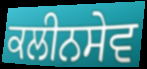
ਕਲੀਨਸੇਵ